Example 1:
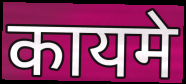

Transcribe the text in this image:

कायमे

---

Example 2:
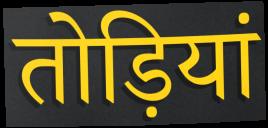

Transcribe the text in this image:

तोड़ियां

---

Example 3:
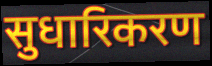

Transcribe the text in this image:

सुधारिकरण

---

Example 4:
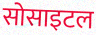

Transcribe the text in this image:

सोसाइटल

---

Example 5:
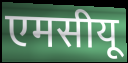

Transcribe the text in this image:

एमसीयू